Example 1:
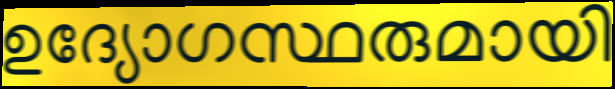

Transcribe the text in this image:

ഉദ്യോഗസ്ഥരുമായി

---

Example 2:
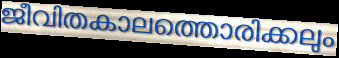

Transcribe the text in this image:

ജീവിതകാലത്തൊരിക്കലും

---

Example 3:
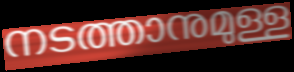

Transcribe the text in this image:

നടത്താനുമുള്ള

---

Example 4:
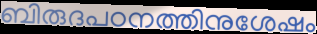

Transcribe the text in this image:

ബിരുദപഠനത്തിനുശേഷം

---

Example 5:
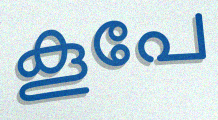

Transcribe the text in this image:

കൂപേ